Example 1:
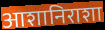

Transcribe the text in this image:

आशानिराशा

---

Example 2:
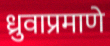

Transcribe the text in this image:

ध्रुवाप्रमाणे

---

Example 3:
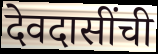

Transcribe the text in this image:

देवदासींची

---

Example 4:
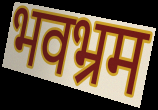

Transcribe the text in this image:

भवभ्रम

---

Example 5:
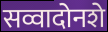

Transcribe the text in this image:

सव्वादोनशे